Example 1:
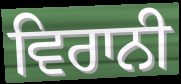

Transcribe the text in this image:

ਵਿਰਾਨੀ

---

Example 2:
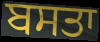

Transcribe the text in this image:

ਬਸਤਾ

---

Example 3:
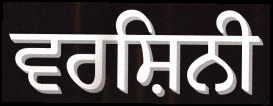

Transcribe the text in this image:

ਵਰਸ਼ਿਨੀ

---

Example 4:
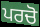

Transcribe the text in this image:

ਪਰਚੋ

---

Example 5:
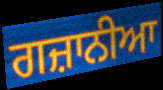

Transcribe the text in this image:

ਗਜ਼ਾਨੀਆ